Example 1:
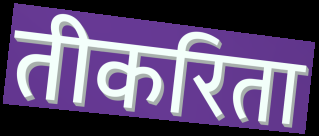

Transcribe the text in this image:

तीकरिता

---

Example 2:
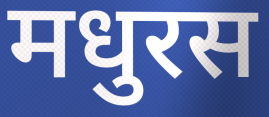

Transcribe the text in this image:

मधुरस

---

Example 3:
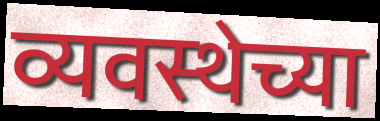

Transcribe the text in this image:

व्यवस्थेच्या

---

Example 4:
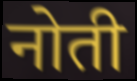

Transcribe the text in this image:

नोती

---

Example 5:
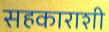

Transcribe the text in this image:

सहकाराशी